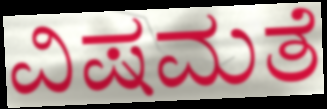
ವಿಷಮತೆ